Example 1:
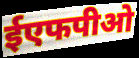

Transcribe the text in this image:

ईएफपीओ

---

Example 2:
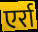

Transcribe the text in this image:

एर्रा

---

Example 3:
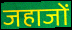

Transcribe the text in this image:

जहाजों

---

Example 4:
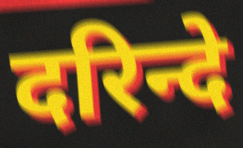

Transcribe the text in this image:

दरिन्दे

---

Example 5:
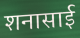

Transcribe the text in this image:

शनासाई